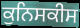
ਕੁਨਿਸਕੀਸ